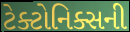
ટેક્ટોનિક્સની